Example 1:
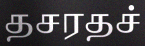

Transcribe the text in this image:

தசரதச்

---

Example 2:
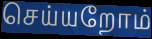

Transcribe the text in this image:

செய்யறோம்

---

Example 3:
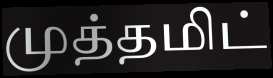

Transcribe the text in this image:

முத்தமிட்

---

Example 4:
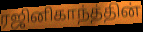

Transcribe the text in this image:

ரஜினிகாந்த்தின்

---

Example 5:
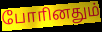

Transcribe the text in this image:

போரினதும்